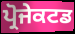
ਪ੍ਰੋਜੇਕਟਡ